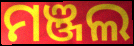
ମଞ୍ଜଲ